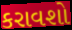
કરાવશો